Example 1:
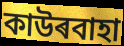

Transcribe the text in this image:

কাউৰবাহা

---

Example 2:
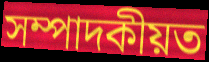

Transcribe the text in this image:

সম্পাদকীয়ত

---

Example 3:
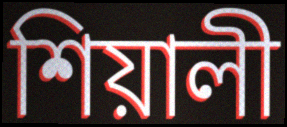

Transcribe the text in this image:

শিয়ালী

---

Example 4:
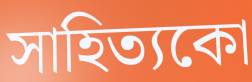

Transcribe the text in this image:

সাহিত্যকো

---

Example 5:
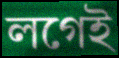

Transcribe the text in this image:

লগেই